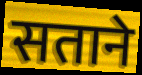
सताने